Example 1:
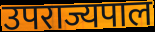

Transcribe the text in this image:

उपराज्यपाल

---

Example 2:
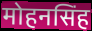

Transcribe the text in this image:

मोहनसिंह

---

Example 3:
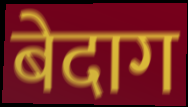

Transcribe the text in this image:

बेदाग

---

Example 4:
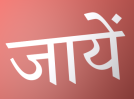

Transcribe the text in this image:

जायें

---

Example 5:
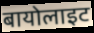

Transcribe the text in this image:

बायोलाइट